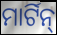
ମାର୍ଟିନ୍